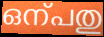
ഒന്പതു